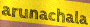
arunachala